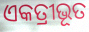
ଏକତ୍ରୀଭୂତ